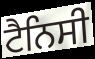
ਟੈਨਿਸੀ